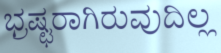
ಭ್ರಷ್ಟರಾಗಿರುವುದಿಲ್ಲ